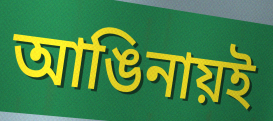
আঙিনায়ই